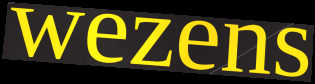
wezens